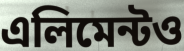
এলিমেন্টও